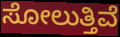
ಸೋಲುತ್ತಿವೆ